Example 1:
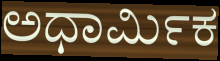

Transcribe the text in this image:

ಅಧಾರ್ಮಿಕ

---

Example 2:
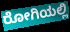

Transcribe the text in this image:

ರೋಗಿಯಲ್ಲಿ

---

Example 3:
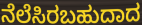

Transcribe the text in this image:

ನೆಲೆಸಿರಬಹುದಾದ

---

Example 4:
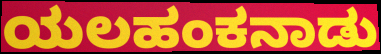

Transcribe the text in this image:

ಯಲಹಂಕನಾಡು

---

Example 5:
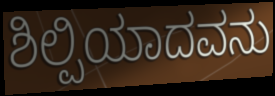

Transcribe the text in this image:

ಶಿಲ್ಪಿಯಾದವನು